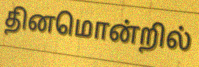
தினமொன்றில்